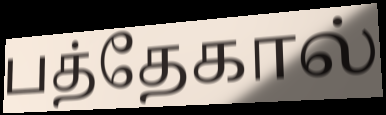
பத்தேகால்